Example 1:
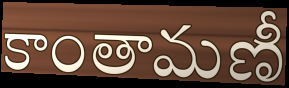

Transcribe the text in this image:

కాంతామణీ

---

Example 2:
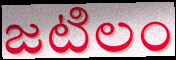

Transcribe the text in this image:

జటిలం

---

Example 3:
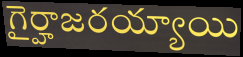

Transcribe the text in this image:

గైర్హాజరయ్యాయి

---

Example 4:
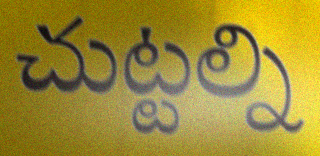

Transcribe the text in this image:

చుట్టల్ని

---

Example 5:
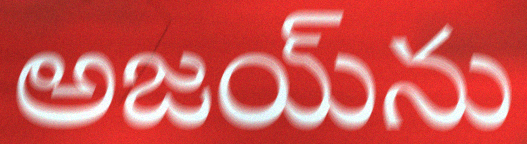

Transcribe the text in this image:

అజయ్‌ను